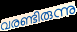
വരണ്ടിരുന്നു